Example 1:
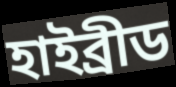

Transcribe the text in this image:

হাইব্ৰীড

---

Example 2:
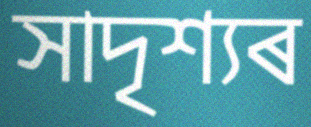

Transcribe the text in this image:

সাদৃশ্যৰ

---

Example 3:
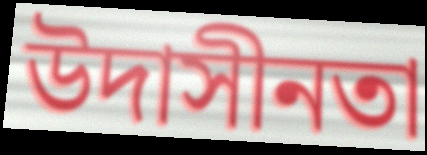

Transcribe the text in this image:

উদাসীনতা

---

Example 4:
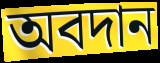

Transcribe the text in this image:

অবদান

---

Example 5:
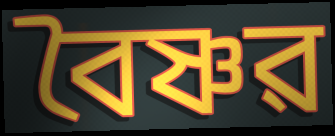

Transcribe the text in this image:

বৈষ্ণৱ